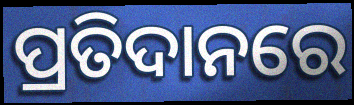
ପ୍ରତିଦାନରେ